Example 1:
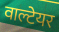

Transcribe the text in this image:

वाल्टेयर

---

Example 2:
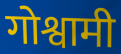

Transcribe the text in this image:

गोश्वामी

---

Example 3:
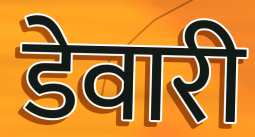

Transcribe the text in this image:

डेवारी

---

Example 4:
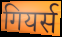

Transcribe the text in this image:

गियर्स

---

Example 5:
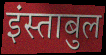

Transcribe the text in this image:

इंस्ताबुल